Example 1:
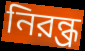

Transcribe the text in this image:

নিরন্ধ্র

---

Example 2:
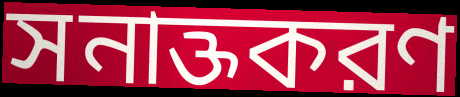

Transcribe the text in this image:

সনাক্তকরণ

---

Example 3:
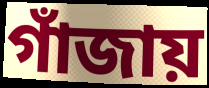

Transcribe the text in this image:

গাঁজায়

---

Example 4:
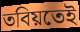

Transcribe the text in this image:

তবিয়তেই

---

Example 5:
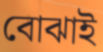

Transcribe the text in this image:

বোঝাই